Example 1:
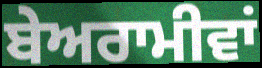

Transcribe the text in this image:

ਬੇਅਰਾਮੀਵਾਂ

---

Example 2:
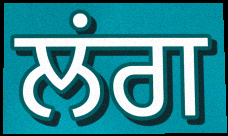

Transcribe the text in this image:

ਲਂਗ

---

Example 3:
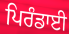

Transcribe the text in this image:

ਪਿਰੰਡਾਈ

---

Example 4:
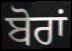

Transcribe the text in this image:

ਬੋਰਾਂ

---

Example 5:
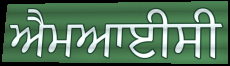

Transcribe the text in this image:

ਐਮਆਈਸੀ